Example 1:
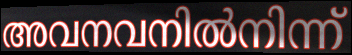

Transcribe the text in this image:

അവനവനിൽനിന്ന്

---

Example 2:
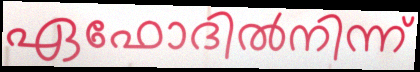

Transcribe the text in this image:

ഏഫോദിൽനിന്ന്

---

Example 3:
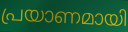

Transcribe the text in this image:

പ്രയാണമായി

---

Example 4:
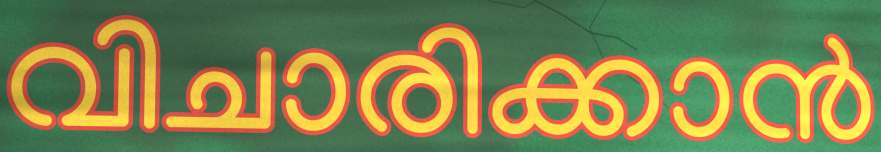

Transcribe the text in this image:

വിചാരിക്കാൻ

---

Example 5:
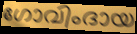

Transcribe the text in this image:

ഗോവിംദായ